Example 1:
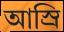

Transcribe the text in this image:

আস্রি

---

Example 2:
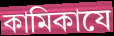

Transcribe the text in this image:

কামিকাযে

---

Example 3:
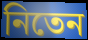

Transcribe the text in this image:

নিতেন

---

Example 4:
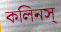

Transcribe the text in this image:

কলিনস্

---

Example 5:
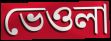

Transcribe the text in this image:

ভেওলা